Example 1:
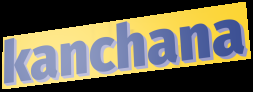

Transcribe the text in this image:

kanchana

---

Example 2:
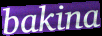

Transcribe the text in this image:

bakina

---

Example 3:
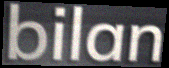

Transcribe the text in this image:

bilan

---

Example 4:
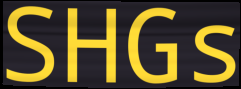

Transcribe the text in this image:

SHGs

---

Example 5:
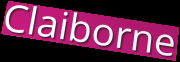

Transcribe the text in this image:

Claiborne